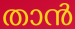
താൻ